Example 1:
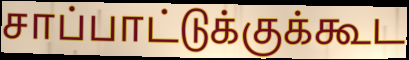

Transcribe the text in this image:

சாப்பாட்டுக்குக்கூட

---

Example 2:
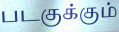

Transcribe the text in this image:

படகுக்கும்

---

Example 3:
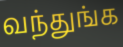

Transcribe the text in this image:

வந்துங்க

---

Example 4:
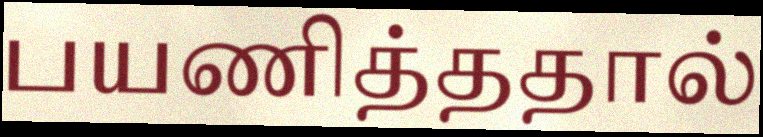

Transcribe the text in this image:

பயணித்ததால்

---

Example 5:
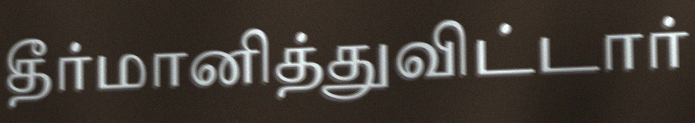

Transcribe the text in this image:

தீர்மானித்துவிட்டார்